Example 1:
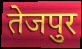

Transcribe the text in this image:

तेजपुर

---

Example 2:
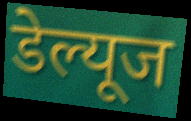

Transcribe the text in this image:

डेल्यूज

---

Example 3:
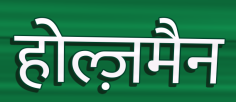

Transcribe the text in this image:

होल्ज़मैन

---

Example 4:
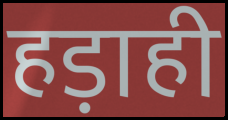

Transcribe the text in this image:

हड़ाही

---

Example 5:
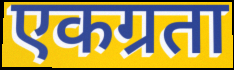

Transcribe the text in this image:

एकग्रता